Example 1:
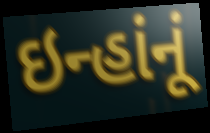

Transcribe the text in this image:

ઇન્હાંનૂં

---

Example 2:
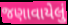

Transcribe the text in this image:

જણાવાયેલું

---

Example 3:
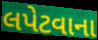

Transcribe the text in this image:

લપેટવાના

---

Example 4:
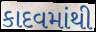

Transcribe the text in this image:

કાદવમાંથી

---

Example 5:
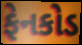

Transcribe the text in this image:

ફેનકોડ